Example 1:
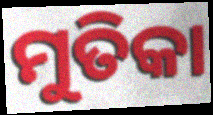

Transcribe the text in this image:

ମୁତିକା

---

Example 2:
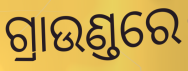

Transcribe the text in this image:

ଗ୍ରାଉଣ୍ଡରେ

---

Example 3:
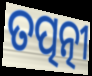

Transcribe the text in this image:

ତତ୍ପତ୍ନୀ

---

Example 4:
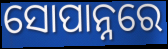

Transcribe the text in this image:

ସୋପାନ୍ନରେ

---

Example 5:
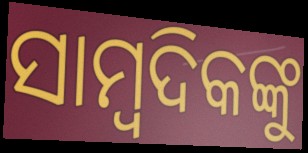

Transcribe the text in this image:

ସାମ୍ବଦିକଙ୍କୁ